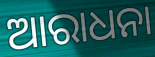
ଆରାଧନା